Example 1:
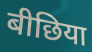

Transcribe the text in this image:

बीछिया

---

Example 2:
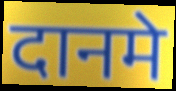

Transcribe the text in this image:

दानमे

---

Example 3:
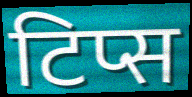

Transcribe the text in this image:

टिप्‍स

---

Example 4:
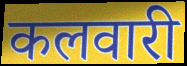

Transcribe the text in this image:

कलवारी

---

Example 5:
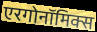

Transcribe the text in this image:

एरगोनॉमिक्स